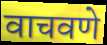
वाचवणे